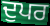
ਦੁਪਰ